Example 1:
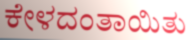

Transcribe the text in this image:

ಕೇಳದಂತಾಯಿತು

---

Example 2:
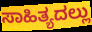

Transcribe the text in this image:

ಸಾಹಿತ್ಯದಲ್ಲು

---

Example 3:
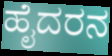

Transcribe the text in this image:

ಹೈದರನ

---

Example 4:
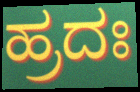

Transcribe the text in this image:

ಹ್ರದಃ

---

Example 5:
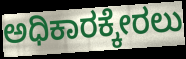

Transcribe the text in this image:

ಅಧಿಕಾರಕ್ಕೇರಲು